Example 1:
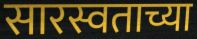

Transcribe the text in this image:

सारस्वताच्या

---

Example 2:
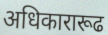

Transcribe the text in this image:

अधिकारारूढ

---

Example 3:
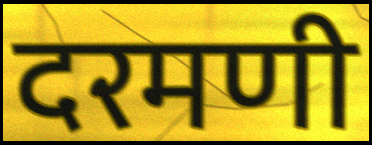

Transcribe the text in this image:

दरमणी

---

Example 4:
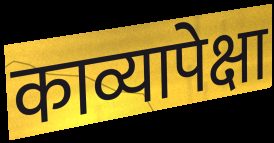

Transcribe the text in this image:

काव्यापेक्षा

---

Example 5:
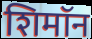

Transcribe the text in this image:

शिमॉन